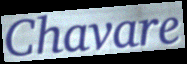
Chavare